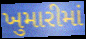
ખુમારીમાં